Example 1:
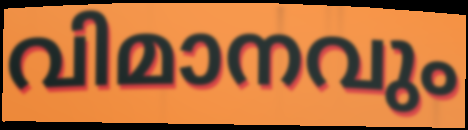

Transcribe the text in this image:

വിമാനവും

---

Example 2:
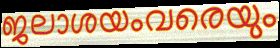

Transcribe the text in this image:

ജലാശയംവരെയും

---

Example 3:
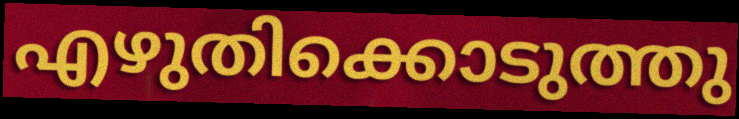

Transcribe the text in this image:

എഴുതിക്കൊടുത്തു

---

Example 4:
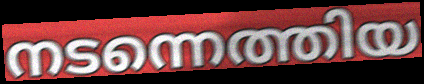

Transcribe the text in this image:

നടന്നെത്തിയ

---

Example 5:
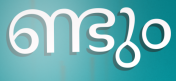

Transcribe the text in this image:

ണ്ടും